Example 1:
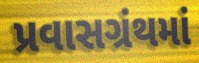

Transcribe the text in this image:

પ્રવાસગ્રંથમાં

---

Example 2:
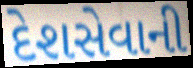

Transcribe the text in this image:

દેશસેવાની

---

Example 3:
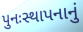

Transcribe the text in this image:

પુનઃસ્થાપનાનું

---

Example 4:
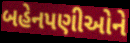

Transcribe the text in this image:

બહેનપણીઓને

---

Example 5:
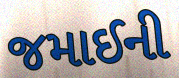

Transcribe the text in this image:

જમાઈની